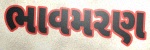
ભાવમરણ